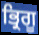
ਭ੍ਰਿਗੂ